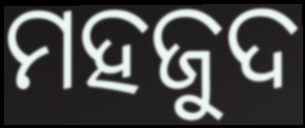
ମହଜୁଦ